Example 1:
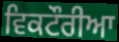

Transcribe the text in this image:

ਵਿਕਟੌਰੀਆ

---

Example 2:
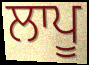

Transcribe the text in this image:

ਲਾਪੂ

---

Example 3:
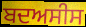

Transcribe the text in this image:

ਬਦਅਸੀਸ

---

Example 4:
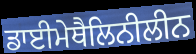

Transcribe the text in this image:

ਡਾਈਮੇਥੈਲਿਨੀਲੀਨ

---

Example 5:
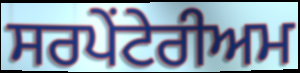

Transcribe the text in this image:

ਸਰਪੇਂਟੇਰੀਅਮ